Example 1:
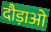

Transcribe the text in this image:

दौड़ाओ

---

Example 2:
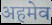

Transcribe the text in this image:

अहमेव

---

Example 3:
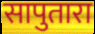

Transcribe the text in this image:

सापुतारा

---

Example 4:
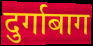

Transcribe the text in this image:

दुर्गाबाग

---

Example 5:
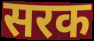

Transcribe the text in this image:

सरक